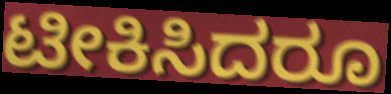
ಟೀಕಿಸಿದರೂ